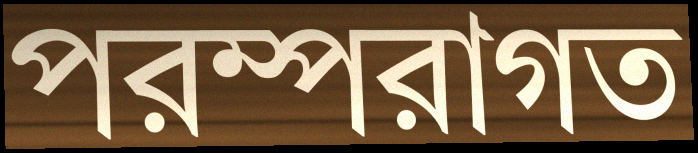
পরম্পরাগত